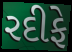
રદીફે